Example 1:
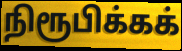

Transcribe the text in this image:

நிரூபிக்கக்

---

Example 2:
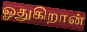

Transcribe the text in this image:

ஓதுகிறான்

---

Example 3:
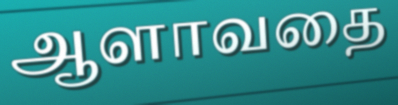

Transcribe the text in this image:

ஆளாவதை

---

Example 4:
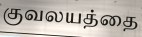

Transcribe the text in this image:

குவலயத்தை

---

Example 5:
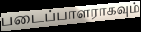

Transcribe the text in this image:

படைப்பாளராகவும்